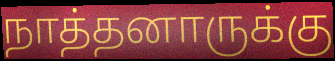
நாத்தனாருக்கு